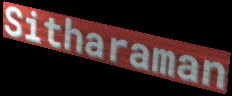
Sitharaman